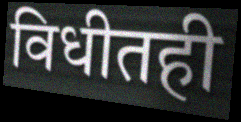
विधीतही